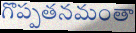
గొప్పతనమంతా